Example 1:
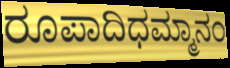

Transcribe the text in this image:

ರೂಪಾದಿಧಮ್ಮಾನಂ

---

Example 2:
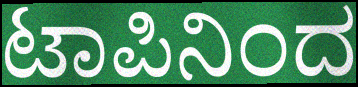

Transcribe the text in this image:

ಟಾಪಿನಿಂದ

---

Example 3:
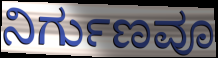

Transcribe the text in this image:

ನಿರ್ಗುಣವೂ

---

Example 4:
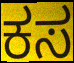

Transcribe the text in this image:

ಕಸ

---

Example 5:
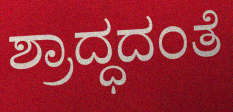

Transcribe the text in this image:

ಶ್ರಾದ್ಧದಂತೆ